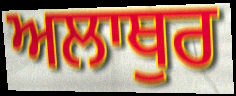
ਅਲਾਥੁਰ